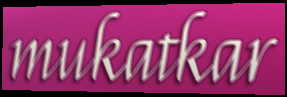
mukatkar